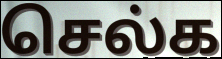
செல்க